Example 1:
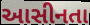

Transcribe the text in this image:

આસીનતા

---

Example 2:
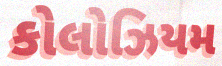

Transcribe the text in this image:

કોલોઝિયમ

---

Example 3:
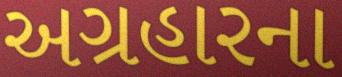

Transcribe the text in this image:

અગ્રહારના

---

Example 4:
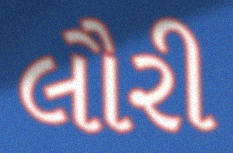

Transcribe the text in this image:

લૌરી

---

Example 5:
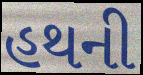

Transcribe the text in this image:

હથની